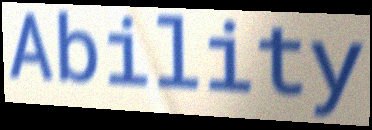
Ability